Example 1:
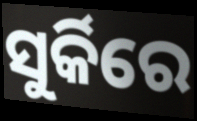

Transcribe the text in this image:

ସୁର୍କିରେ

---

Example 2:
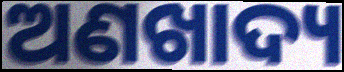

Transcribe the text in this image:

ଅଣଖାଦ୍ୟ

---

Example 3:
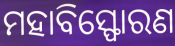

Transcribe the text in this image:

ମହାବିସ୍ଫୋରଣ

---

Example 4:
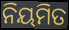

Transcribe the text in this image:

ନିୟମିତ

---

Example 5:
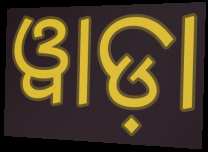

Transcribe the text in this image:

ୱାଡ଼ା